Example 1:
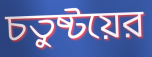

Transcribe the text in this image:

চতুষ্টয়ের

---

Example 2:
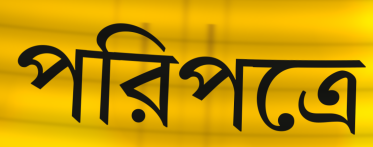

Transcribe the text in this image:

পরিপত্রে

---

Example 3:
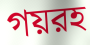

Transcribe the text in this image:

গয়রহ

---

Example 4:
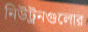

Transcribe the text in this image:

নিউট্রনগুলোর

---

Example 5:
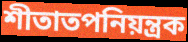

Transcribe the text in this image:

শীতাতপনিয়ন্ত্রক